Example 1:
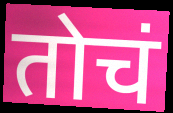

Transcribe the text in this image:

तोचं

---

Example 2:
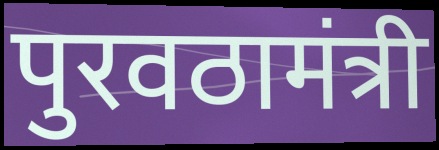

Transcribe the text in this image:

पुरवठामंत्री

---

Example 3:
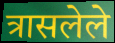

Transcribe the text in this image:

त्रासलेले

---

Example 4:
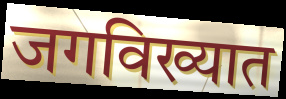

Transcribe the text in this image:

जगविख्यात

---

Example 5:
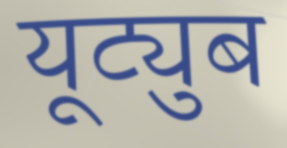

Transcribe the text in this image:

यूट्युब